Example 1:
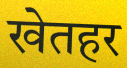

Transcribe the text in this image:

खेतहर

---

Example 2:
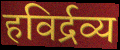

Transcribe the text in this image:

हविर्द्रव्य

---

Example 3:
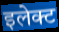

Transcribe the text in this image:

इलेक्ट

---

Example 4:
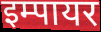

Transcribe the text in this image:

इम्पायर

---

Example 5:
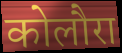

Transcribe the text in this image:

कोलौरा